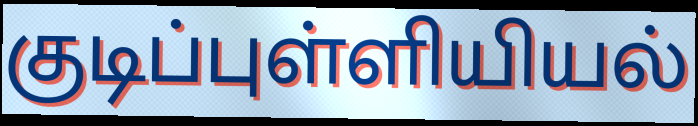
குடிப்புள்ளியியல்